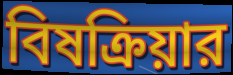
বিষক্রিয়ার